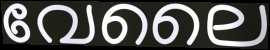
വേലൈ